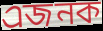
এজনক